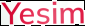
Yesim